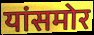
यांसमोर